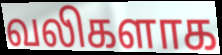
வலிகளாக